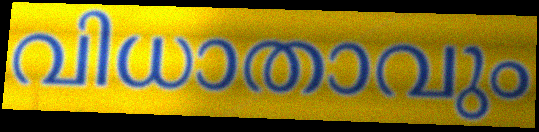
വിധാതാവും